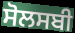
ਸੋਲਸਬੀ